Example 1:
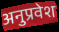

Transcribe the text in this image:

अनुप्रवेश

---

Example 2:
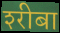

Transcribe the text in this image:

श्रीबा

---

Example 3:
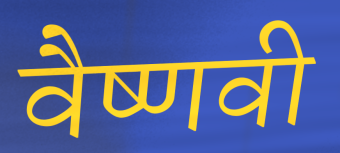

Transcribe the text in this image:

वैष्णवी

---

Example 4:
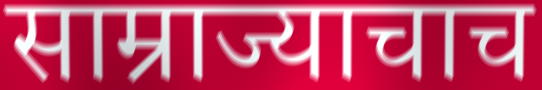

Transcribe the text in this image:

साम्राज्याचाच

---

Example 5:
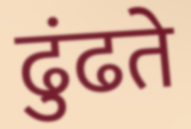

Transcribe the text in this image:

ढुंढते